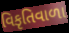
વિકૃતિવાળા